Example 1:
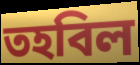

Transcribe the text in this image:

তহবিল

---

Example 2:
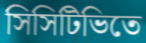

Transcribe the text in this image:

সিসিটিভিতে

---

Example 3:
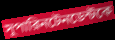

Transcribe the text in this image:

সুপারিনটেনডেন্টকে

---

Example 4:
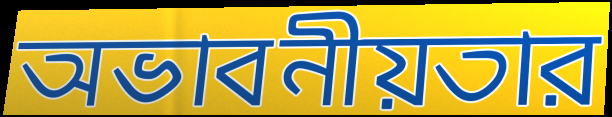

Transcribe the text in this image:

অভাবনীয়তার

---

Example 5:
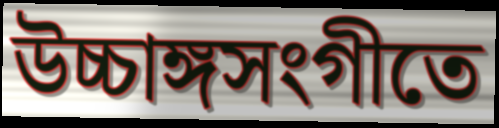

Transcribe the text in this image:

উচ্চাঙ্গসংগীতে